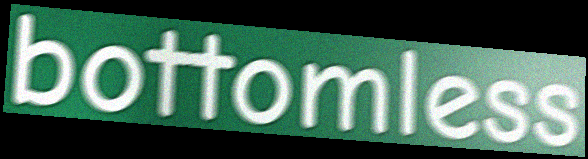
bottomless